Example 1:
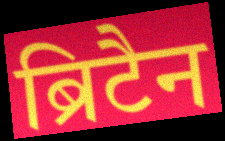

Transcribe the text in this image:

ब्रिटैन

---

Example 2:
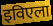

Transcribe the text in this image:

इविएला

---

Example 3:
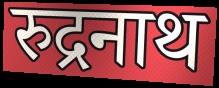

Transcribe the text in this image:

रुद्रनाथ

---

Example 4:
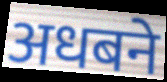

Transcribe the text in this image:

अधबने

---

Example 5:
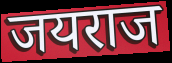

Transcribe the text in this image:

जयराज